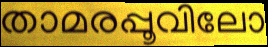
താമരപ്പൂവിലോ